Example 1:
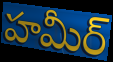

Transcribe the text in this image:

హమీర్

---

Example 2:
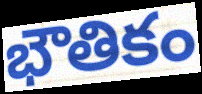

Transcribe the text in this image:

భౌతికం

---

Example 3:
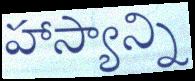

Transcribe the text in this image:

హాస్యాన్ని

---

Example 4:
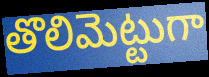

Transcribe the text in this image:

తొలిమెట్టుగా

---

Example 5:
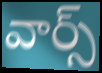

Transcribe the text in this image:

వార్స్